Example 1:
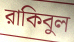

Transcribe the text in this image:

রাকিবুল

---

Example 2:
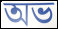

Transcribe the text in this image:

অভ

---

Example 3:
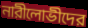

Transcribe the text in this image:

নারীলোভীদের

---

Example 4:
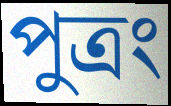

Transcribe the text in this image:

পুত্রং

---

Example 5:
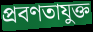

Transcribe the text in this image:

প্রবণতাযুক্ত